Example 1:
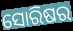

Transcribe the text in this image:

ସୋରିଷର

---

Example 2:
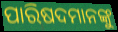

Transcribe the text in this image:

ପାରିଷଦମାନଙ୍କୁ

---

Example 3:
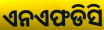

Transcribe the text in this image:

ଏନଏଫଡିସି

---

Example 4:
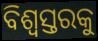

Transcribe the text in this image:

ବିଶ୍ୱସ୍ତରକୁ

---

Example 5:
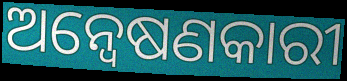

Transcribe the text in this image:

ଅନ୍ୱେଷଣକାରୀ